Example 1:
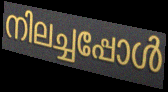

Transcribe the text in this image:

നിലച്ചപ്പോൾ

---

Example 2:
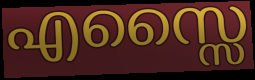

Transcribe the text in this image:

എസ്സൈ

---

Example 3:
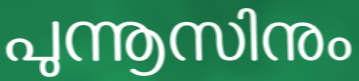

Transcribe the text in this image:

പുന്നൂസിനും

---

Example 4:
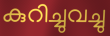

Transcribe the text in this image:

കുറിച്ചുവച്ചു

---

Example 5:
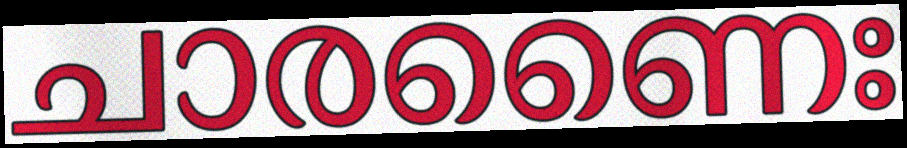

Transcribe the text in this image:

ചാരണൈഃ